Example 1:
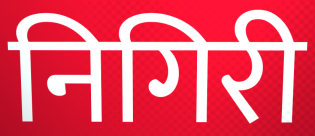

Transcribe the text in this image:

निगिरी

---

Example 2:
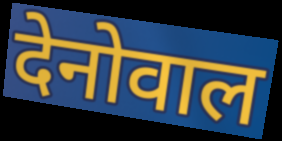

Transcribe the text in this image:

देनोवाल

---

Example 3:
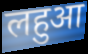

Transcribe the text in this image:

लहुआ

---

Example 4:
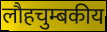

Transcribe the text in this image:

लौहचुम्बकीय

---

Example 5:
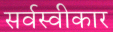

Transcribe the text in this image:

सर्वस्वीकार